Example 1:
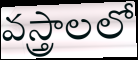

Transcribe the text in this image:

వస్త్రాలలో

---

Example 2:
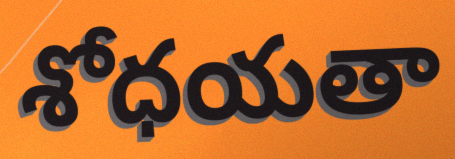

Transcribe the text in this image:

శోధయతా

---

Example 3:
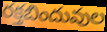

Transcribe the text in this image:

రక్తబిందువుల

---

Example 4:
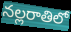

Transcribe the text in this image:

నల్లరాతిలో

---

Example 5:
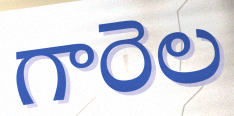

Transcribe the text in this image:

గారెల